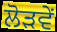
ਲੋੜਵੇਂ